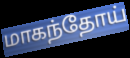
மாகந்தோய்